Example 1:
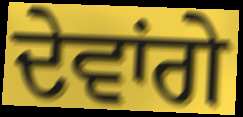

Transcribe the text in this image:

ਦੇਵਾਂਗੇ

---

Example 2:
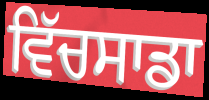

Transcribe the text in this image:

ਵਿੱਚਸਾਡਾ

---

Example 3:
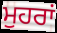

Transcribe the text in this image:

ਮੁਹਰਾਂ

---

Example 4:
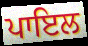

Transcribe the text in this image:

ਪਾਇਲ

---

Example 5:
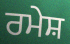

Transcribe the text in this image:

ਰਮੇਸ਼